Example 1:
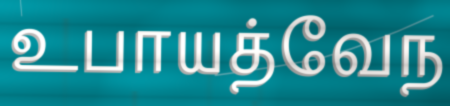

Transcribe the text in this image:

உபாயத்வேந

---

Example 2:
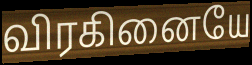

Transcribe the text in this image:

விரகினையே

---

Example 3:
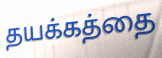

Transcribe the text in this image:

தயக்கத்தை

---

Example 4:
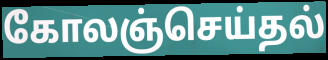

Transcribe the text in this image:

கோலஞ்செய்தல்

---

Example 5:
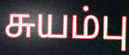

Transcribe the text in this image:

சுயம்பு